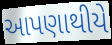
આપણાથીયે